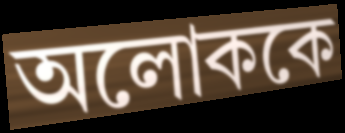
অলোককে